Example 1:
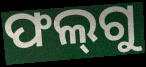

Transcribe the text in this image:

ଫଲ୍‌ଗୁ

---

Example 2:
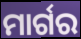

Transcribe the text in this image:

ମାର୍ଗର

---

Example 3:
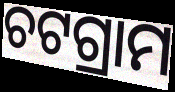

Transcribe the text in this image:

ଚଟଗ୍ରାମ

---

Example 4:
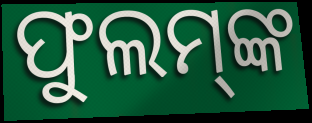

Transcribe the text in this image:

ଫୁଲମ୍‌ଙ୍କ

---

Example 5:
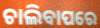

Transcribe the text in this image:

ଚାଲିବାପରେ